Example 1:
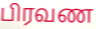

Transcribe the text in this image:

பிரவண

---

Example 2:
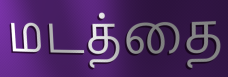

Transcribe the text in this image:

மடத்தை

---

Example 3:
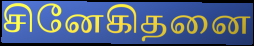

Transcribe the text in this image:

சினேகிதனை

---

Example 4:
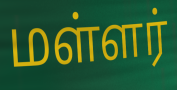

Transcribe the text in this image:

மள்ளர்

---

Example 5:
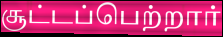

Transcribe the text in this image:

சூட்டப்பெற்றார்